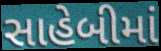
સાહેબીમાં